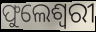
ଫୁଲେଶ୍ବରୀ